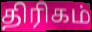
திரிகம்